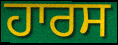
ਹਾਰਸ